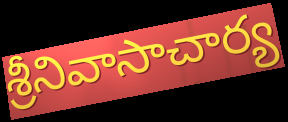
శ్రీనివాసాచార్య